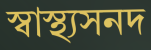
স্বাস্থ্যসনদ